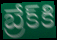
బ్రేక్‌కి